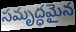
సమృద్ధమైన